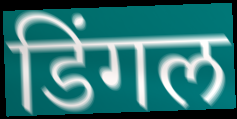
डिंगल